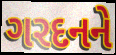
ગરદનને